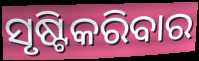
ସୃଷ୍ଟିକରିବାର